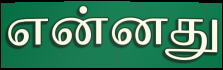
என்னது